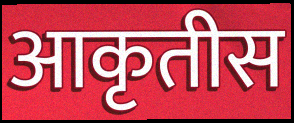
आकृतीस